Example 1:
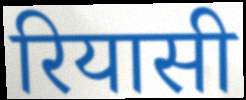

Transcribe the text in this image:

रियासी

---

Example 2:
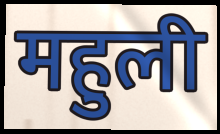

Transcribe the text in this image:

महुली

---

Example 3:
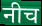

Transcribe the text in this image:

नीच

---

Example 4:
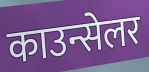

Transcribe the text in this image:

काउन्सेलर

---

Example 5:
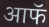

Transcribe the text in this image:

आफॅ